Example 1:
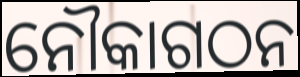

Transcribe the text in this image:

ନୌକାଗଠନ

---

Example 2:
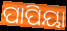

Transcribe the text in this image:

ପାପିୟା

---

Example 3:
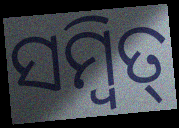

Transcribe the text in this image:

ସମ୍ବିତ୍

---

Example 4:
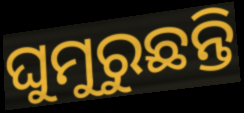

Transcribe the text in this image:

ଘୁମୁରୁଛନ୍ତି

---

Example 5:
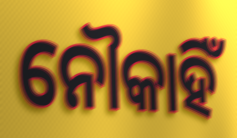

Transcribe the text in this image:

ନୌକାହିଁ